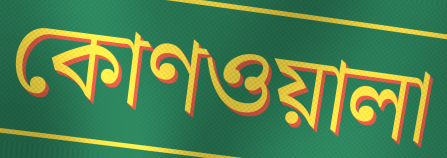
কোণওয়ালা